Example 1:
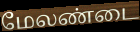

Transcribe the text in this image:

மேலண்டை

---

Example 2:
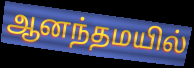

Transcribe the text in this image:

ஆனந்தமயில்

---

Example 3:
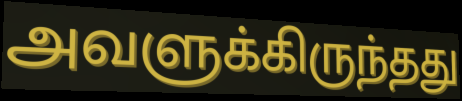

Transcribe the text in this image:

அவளுக்கிருந்தது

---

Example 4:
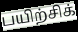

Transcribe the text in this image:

பயிற்சிக்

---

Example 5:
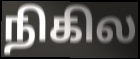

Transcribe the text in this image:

நிகில